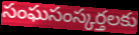
సంఘసంస్కర్తలకు